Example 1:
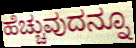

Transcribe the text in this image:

ಹೆಚ್ಚುವುದನ್ನೂ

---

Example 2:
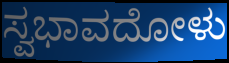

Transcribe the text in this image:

ಸ್ವಭಾವದೋಳು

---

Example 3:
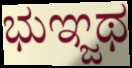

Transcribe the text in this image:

ಭುಞ್ಜಥ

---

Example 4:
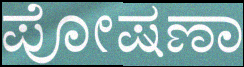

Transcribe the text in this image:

ಪೋಷಣಾ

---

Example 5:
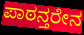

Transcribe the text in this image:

ಪಾಠನ್ತರೇನ